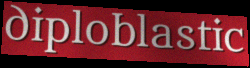
diploblastic